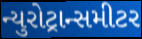
ન્યુરોટ્રાન્સમીટર